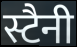
स्टैनी